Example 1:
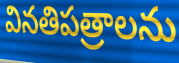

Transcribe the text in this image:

వినతిపత్రాలను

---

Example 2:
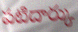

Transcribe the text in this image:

పటిదార్కు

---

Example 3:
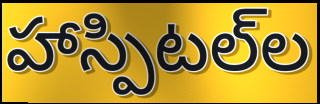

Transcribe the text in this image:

హాస్పిటల్‌ల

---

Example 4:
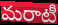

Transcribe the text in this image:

మరాటీ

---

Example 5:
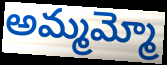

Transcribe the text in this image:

అమ్మమ్మో